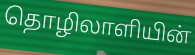
தொழிலாளியின்